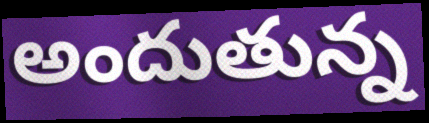
అందుతున్న